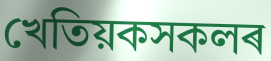
খেতিয়কসকলৰ